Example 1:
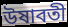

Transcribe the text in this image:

উষাবতী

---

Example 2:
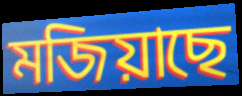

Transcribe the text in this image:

মজিয়াছে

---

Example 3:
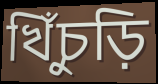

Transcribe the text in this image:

খিঁচুড়ি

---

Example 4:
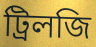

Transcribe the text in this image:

ট্রিলজি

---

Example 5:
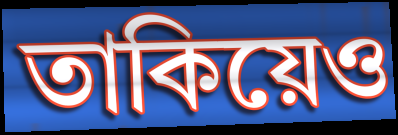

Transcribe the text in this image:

তাকিয়েও